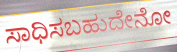
ಸಾಧಿಸಬಹುದೇನೋ